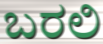
ಬರಲಿ